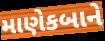
માણેકબાને